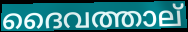
ദൈവത്താല്